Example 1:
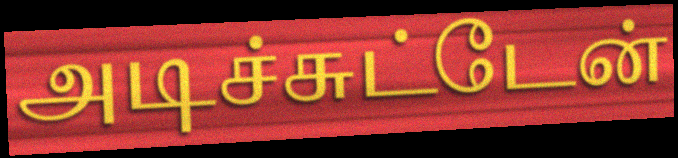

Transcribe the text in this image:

அடிச்சுட்டேன்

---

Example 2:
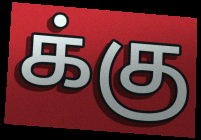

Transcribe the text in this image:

க்கு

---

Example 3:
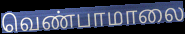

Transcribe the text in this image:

வெண்பாமாலை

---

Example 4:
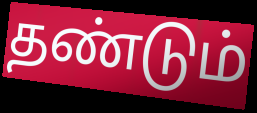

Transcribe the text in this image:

தண்டும்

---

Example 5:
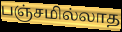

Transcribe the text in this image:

பஞ்சமில்லாத